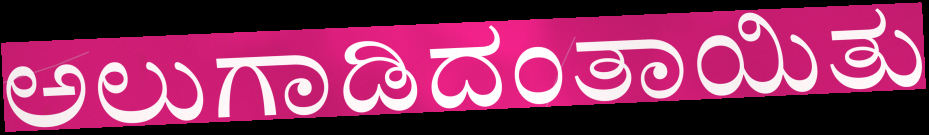
ಅಲುಗಾಡಿದಂತಾಯಿತು